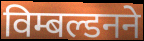
विम्बल्डनने